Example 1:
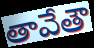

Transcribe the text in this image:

తావేతౌ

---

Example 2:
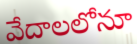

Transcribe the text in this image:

వేదాలలోనూ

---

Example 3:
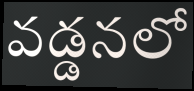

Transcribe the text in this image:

వడ్డనలో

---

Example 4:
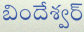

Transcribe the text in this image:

బిందేశ్వర్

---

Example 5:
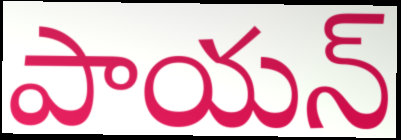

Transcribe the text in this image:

పాయన్